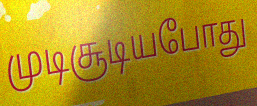
முடிசூடியபோது